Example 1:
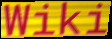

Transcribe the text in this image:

Wiki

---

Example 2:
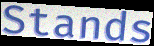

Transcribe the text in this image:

Stands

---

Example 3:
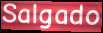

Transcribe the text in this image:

Salgado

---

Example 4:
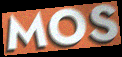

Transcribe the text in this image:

MOS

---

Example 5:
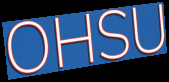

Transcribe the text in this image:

OHSU